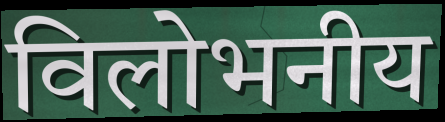
विलोभनीय